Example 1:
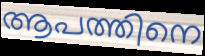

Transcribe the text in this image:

ആപത്തിനെ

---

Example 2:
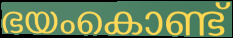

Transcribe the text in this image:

ഭയംകൊണ്ട്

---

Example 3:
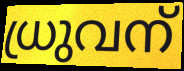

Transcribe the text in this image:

ധ്രുവന്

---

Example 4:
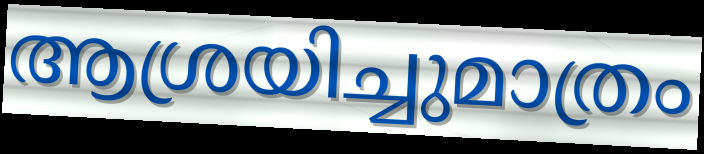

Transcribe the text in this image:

ആശ്രയിച്ചുമാത്രം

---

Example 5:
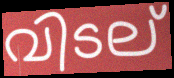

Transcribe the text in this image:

വിടല്